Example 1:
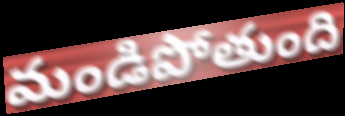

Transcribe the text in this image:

మండిపోతుంది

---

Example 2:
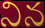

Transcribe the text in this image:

నిన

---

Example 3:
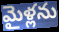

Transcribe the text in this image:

మైళ్లను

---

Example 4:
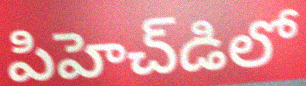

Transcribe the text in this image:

పిహెచ్‌డిలో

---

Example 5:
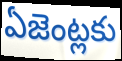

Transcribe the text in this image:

ఏజెంట్లకు